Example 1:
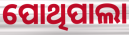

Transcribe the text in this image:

ପୋଥିପାଲା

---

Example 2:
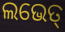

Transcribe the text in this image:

ଲଭେତ୍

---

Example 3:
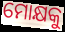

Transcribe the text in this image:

ମୋକ୍ଷକୁ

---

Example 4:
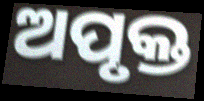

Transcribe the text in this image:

ଅପୃକ୍ତ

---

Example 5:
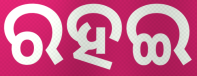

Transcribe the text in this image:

ରହଇ